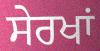
ਸੇਰਖਾਂ